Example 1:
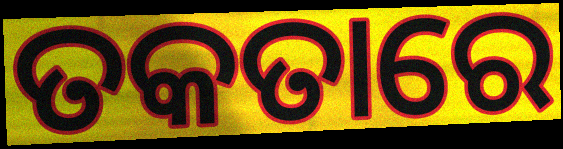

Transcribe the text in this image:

ତକତାରେ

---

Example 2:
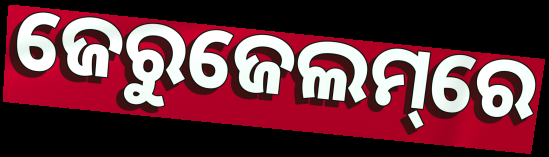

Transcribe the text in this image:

ଜେରୁଜେଲମ୍‌ରେ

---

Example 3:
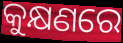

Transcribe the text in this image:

କୁକ୍ଷଣରେ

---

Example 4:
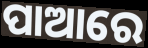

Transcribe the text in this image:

ପାଆରେ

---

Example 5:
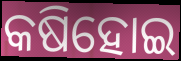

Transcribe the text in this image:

କଷିହୋଇ